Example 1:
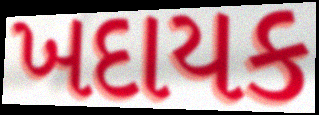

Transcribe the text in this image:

ખદાયક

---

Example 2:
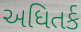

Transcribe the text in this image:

અધિતર્ક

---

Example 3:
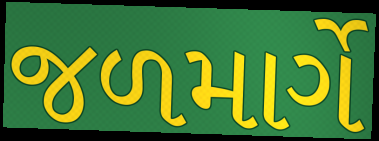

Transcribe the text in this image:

જળમાર્ગે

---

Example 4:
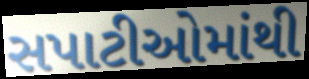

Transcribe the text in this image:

સપાટીઓમાંથી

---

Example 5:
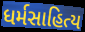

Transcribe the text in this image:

ધર્મસાહિત્ય